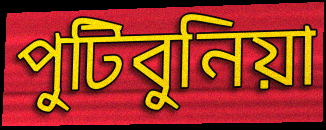
পুটিবুনিয়া